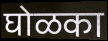
घोळका